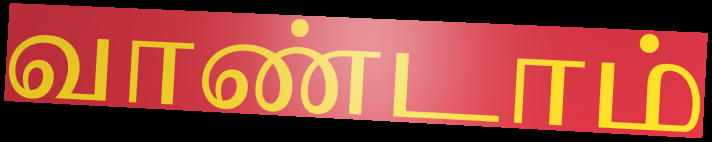
வாண்டாம்